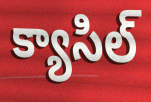
క్యాసిల్